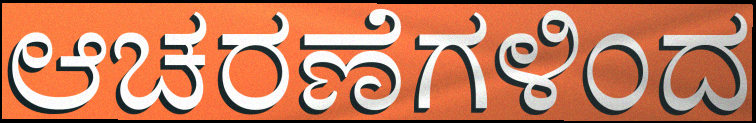
ಆಚರಣೆಗಳಿಂದ